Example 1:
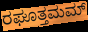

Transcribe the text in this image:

ರಘೂತ್ತಮಮ್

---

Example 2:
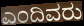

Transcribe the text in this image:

ಎಂದಿವರು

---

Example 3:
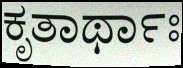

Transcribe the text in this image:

ಕೃತಾರ್ಥಾಃ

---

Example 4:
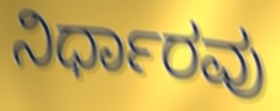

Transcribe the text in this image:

ನಿರ್ಧಾರವು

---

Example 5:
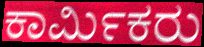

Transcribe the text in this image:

ಕಾರ್ಮಿಕರು